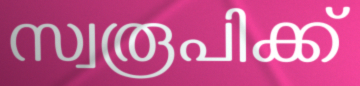
സ്വരൂപിക്ക്